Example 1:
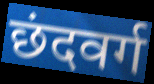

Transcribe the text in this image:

छंदवर्ग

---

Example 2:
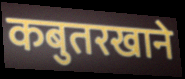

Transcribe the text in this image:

कबुतरखाने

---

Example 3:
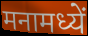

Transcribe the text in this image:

मनामध्यें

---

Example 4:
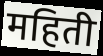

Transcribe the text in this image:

महिती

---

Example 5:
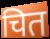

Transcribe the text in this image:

चित